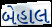
બેહાલ